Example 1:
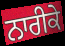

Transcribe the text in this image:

ਨਾਰੀਕੇ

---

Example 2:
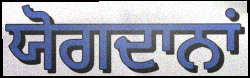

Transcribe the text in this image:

ਯੋਗਦਾਨਾਂ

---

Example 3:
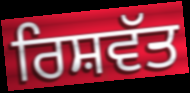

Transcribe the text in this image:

ਰਿਸ਼ਵੱਤ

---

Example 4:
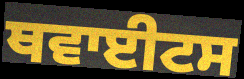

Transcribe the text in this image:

ਥਵਾਈਟਸ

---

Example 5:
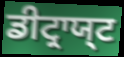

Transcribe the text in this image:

ਡੀਟ੍ਰਾਯ੍ਟ